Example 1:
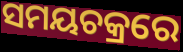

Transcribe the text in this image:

ସମୟଚକ୍ରରେ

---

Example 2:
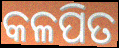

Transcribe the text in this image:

କଳପିତ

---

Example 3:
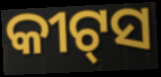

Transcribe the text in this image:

କୀଟ୍‌ସ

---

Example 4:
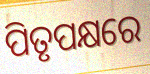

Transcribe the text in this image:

ପିତୃପକ୍ଷରେ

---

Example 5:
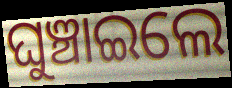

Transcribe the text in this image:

ଘୁଞ୍ଚାଇଲେ